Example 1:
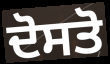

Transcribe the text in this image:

ਦੋਸਤੋ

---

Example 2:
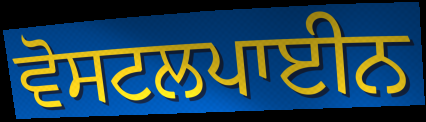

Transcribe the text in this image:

ਵੋਸਟਲਪਾਈਨ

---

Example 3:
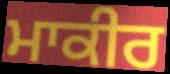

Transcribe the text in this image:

ਮਾਕੀਰ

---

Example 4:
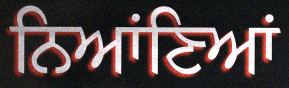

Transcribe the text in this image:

ਨਿਆਂਣਿਆਂ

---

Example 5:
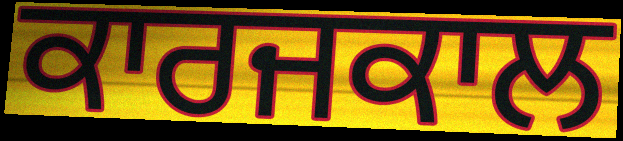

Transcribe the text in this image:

ਕਾਰਜਕਾਲ